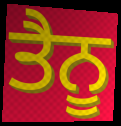
ਤੈਨੂ